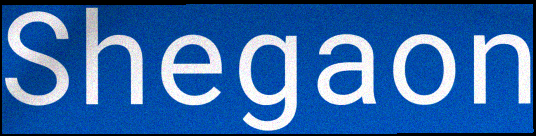
Shegaon